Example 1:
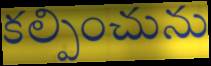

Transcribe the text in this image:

కల్పించును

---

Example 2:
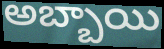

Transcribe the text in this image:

అబ్బాయి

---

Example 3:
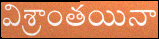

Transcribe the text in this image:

విశ్రాంతయినా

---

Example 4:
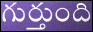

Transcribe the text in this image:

గుర్తుంది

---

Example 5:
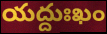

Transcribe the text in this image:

యద్దుఃఖం